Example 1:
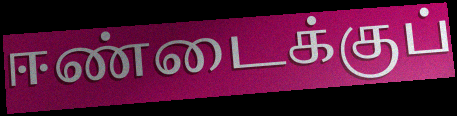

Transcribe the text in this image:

ஈண்டைக்குப்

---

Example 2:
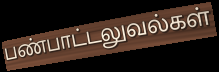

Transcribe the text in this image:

பண்பாட்டலுவல்கள்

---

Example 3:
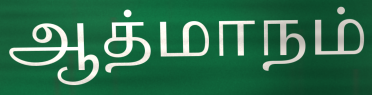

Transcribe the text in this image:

ஆத்மாநம்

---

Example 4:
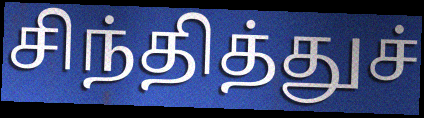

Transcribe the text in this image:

சிந்தித்துச்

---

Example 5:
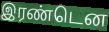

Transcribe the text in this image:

இரண்டென